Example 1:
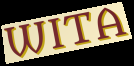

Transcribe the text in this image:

WITA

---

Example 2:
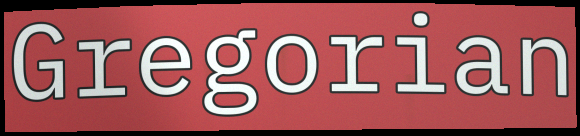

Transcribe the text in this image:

Gregorian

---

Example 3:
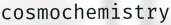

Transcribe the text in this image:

cosmochemistry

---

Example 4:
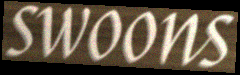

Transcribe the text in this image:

swoons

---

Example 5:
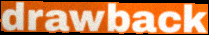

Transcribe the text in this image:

drawback